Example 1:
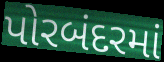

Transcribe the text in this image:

પોરબંદરમાં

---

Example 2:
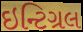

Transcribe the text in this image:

ઇન્ટિગ્રલ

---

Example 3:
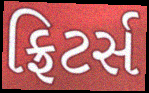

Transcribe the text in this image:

ફ્રિટર્સ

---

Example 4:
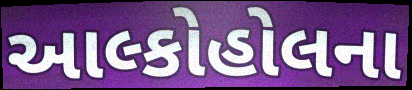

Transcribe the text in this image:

આલ્કોહોલના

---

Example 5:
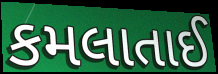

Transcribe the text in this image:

કમલાતાઈ